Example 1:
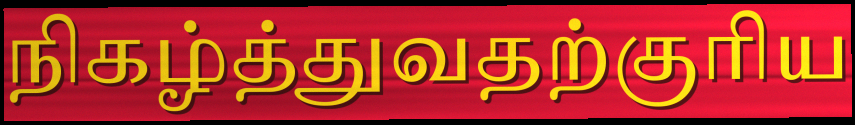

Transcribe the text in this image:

நிகழ்த்துவதற்குரிய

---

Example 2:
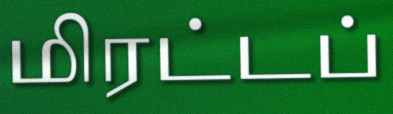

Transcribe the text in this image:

மிரட்டப்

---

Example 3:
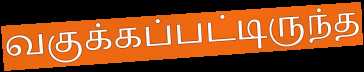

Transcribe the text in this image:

வகுக்கப்பட்டிருந்த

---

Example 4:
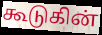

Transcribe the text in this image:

கூடுகின்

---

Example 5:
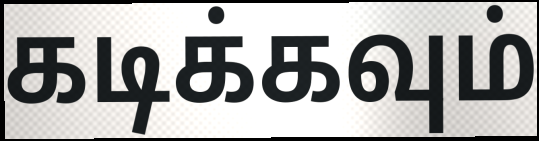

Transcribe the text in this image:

கடிக்கவும்